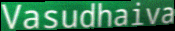
Vasudhaiva